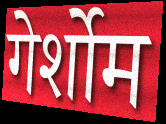
गेर्शोम